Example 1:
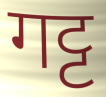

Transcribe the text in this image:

गट्ट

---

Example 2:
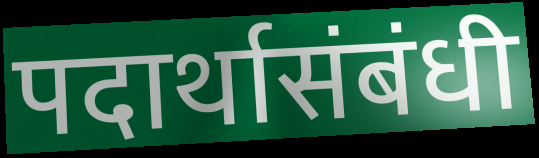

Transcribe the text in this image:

पदार्थासंबंधी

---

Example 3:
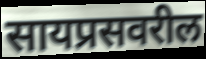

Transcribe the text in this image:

सायप्रसवरील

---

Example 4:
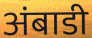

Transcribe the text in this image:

अंबाडी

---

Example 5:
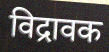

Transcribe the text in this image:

विद्रावक